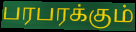
பரபரக்கும்